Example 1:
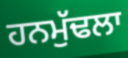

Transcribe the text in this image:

ਹਨਮੁੱਢਲਾ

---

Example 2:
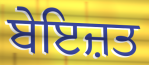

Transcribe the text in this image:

ਬੇਇਜ਼ਤ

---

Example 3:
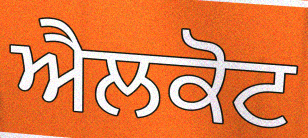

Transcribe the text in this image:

ਐਲਕੋਟ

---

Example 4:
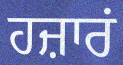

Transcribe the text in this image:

ਹਜ਼ਾਰਂ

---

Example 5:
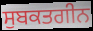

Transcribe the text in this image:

ਸੁਬਕਤਗੀਨ